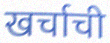
खर्चाची